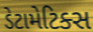
ડેટામેટિક્સ